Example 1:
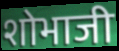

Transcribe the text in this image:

शोभाजी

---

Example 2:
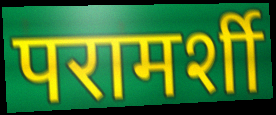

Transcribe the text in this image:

परामर्शी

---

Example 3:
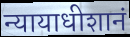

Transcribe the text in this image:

न्यायाधीशानं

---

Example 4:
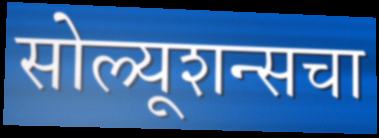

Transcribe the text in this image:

सोल्यूशन्सचा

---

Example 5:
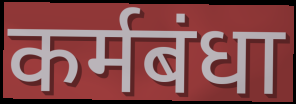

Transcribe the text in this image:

कर्मबंधा